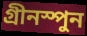
গ্রীনস্পুন